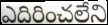
ఎదిరించలేని